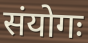
संयोगः